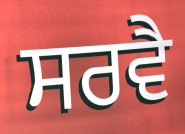
ਸਰਵੈ